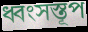
ধ্বংসস্তূপ